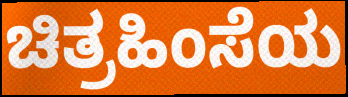
ಚಿತ್ರಹಿಂಸೆಯ